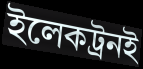
ইলেকট্রনই